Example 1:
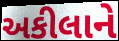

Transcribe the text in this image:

અકીલાને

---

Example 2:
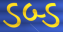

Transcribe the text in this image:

ડબ્ડ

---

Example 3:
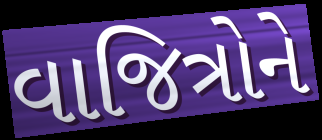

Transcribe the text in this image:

વાજિત્રોને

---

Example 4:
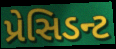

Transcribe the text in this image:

પ્રેસિડન્ટ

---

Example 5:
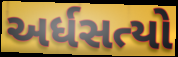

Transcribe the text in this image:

અર્ધસત્યો